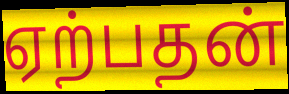
ஏற்பதன்